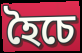
হৈচে